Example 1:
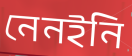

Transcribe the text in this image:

নেনইনি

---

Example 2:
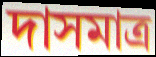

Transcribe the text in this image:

দাসমাত্র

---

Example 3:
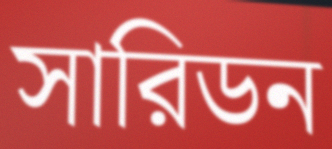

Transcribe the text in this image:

সারিডন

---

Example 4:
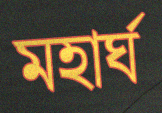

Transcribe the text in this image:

মহার্ঘ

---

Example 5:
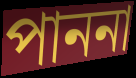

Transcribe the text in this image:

পাননা